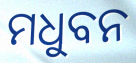
ମଧୁବନ